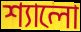
শ্যালো